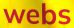
webs